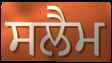
ਸਲੈਮ